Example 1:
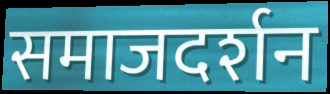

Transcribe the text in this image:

समाजदर्शन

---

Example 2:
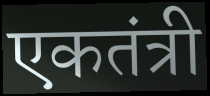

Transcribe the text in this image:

एकतंत्री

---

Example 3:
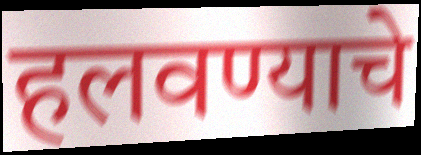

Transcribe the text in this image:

हलवण्याचे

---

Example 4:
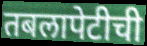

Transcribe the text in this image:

तबलापेटीची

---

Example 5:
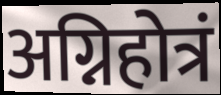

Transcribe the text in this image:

अग्निहोत्रं